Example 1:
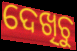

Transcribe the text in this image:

ଦେଖିଚୁ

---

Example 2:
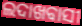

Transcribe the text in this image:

ଲଦାଖବାସୀ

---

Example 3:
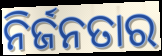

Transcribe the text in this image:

ନିର୍ଜନତାର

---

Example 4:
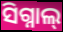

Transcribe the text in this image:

ସିଗ୍ନାଲ୍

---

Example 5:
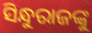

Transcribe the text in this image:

ସିନ୍ଧୁରାଜଙ୍କୁ